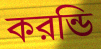
করন্ডি